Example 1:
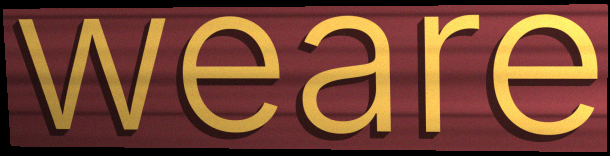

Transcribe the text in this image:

weare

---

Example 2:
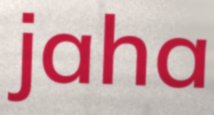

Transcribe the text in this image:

jaha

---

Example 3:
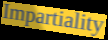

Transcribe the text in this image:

Impartiality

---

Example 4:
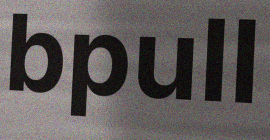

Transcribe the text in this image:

bpull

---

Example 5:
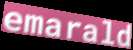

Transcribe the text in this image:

emarald